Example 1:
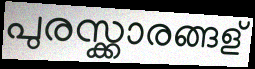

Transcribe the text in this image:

പുരസ്ക്കാരങ്ങള്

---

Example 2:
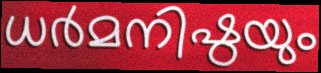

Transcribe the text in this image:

ധർമനിഷ്ഠയും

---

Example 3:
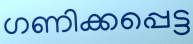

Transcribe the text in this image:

ഗണിക്കപ്പെട്ട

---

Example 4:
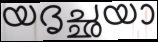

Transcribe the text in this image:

യദൃച്ഛയാ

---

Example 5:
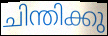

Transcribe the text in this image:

ചിന്തിക്കു